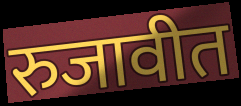
रुजावीत